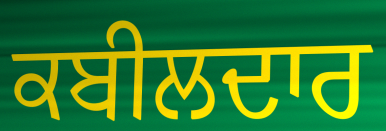
ਕਬੀਲਦਾਰ